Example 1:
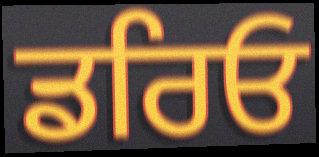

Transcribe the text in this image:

ਡਰਿਓ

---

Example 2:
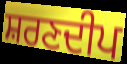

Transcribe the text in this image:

ਸ਼ਰਣਦੀਪ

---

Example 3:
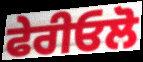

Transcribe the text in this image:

ਫੇਰੀਓਲੋ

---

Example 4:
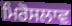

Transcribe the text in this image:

ਮਿਰੋਸਲਾਵ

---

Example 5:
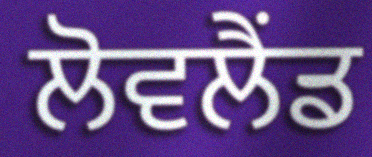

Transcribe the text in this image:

ਲੋਵਲੈਂਡ